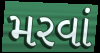
મરવાં